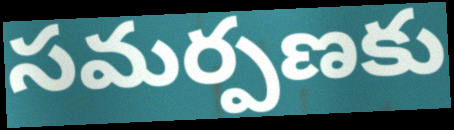
సమర్పణకు